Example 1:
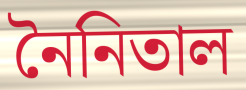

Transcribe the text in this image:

নৈনিতাল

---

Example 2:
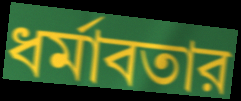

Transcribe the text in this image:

ধর্মাবতার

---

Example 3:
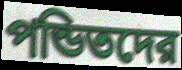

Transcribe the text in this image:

পন্ডিতদের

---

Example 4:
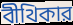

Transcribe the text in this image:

বীথিকার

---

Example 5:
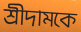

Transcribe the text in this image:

শ্রীদামকে